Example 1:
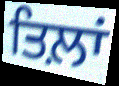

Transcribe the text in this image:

ਤਿਲ਼ਾਂ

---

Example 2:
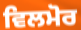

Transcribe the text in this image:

ਵਿਲਮੋਰ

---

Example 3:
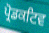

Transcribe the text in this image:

ਪ੍ਰੋਡਕਟਿਵ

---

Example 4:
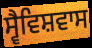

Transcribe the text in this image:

ਸ੍ਵੈਵਿਸ਼ਵਾਸ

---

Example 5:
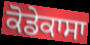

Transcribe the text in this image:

ਕੋਡੇਕਾਸਾ